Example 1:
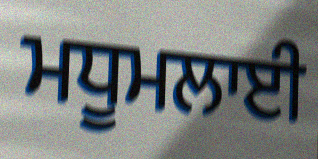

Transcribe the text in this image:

ਮਧੂਮਲਾਈ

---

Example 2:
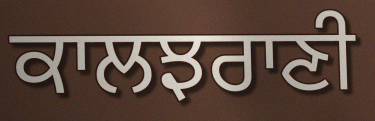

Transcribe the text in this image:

ਕਾਲਝਰਾਣੀ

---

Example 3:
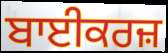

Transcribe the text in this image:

ਬਾਈਕਰਜ਼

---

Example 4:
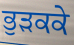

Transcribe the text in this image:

ਭੁੜਕਕੇ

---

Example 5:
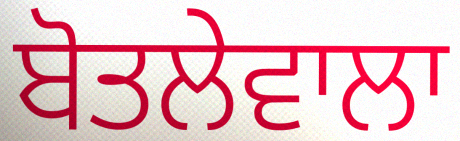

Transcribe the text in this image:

ਬੋਤਲੇਵਾਲਾ